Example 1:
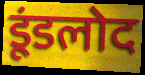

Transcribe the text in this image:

डूंडलोद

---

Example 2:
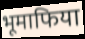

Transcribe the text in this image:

भूमाफिया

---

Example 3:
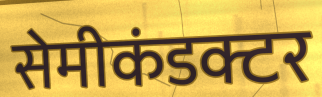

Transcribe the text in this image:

सेमीकंडक्टर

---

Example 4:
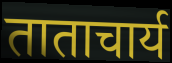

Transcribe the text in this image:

ताताचार्य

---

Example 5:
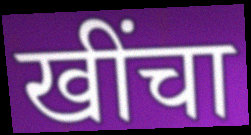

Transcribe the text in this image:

खींचा